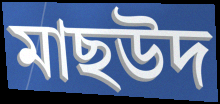
মাছউদ